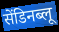
सेंडिनब्लू